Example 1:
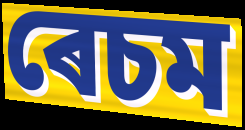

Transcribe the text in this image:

ৰেচম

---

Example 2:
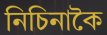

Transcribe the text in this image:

নিচিনাকৈ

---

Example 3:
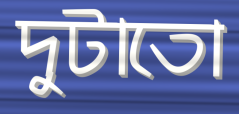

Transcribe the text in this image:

দুটাতো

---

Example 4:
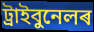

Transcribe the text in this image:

ট্ৰাইবুনেলৰ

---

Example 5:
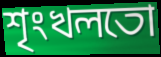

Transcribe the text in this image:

শৃংখলতো